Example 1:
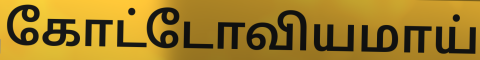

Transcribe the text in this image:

கோட்டோவியமாய்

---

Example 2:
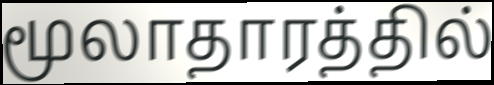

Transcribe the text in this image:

மூலாதாரத்தில்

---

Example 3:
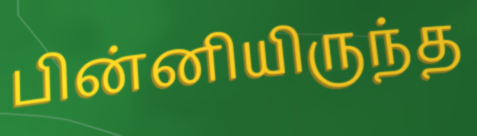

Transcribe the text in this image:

பின்னியிருந்த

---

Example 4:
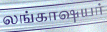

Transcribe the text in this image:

லங்காஷயர்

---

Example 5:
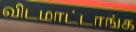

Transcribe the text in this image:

விடமாட்டாங்க